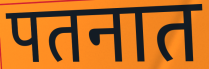
पतनात